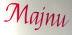
Majnu